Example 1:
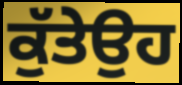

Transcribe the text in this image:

ਕੁੱਤੇਉਹ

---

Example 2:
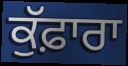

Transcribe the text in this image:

ਕੁੱਫ਼ਾਰਾ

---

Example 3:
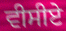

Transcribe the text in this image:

ਵੀਸੀਏ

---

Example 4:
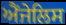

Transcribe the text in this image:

ਐਂਜੇਲਿਸ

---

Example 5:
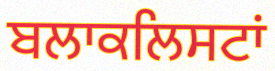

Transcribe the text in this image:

ਬਲਾਕਲਿਸਟਾਂ